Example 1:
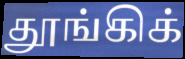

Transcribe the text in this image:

தூங்கிக்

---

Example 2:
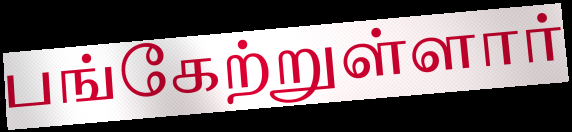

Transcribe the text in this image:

பங்கேற்றுள்ளார்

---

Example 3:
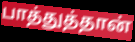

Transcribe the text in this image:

பாத்துத்தான்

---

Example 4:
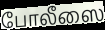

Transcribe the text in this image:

போலீஸை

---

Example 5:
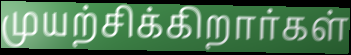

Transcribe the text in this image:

முயற்சிக்கிறார்கள்